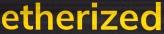
etherized